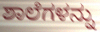
ಶಾಲೆಗಳನ್ನು